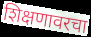
शिक्षणावरचा